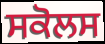
ਸਕੋਲਸ